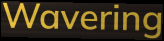
Wavering